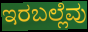
ಇರಬಲ್ಲೆವು